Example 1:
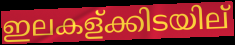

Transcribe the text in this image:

ഇലകള്ക്കിടയില്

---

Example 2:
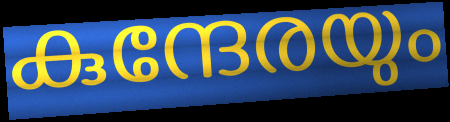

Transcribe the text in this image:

കുന്ദേരയും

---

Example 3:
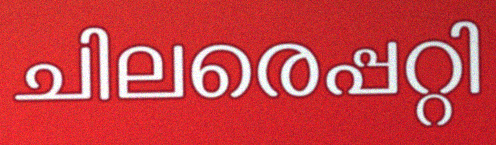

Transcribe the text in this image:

ചിലരെപ്പറ്റി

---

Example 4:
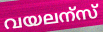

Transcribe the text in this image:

വയലന്സ്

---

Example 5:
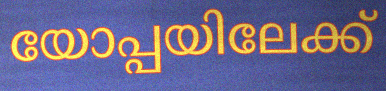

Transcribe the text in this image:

യോപ്പയിലേക്ക്